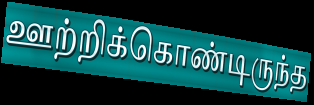
ஊற்றிக்கொண்டிருந்த